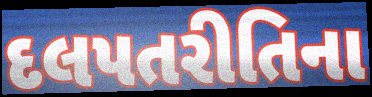
દલપતરીતિના